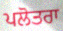
ਪਲੋਤਰਾ